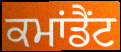
ਕਮਾਂਡੈਂਟ